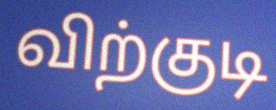
விற்குடி